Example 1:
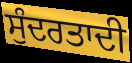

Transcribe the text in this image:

ਸੁੰਦਰਤਾਦੀ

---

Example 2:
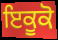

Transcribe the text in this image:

ਇਕੂਕੋ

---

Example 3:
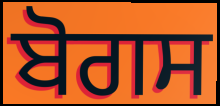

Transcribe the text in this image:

ਬੋਗਸ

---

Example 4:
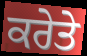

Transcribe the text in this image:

ਕਰੇਤੇ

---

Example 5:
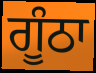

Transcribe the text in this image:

ਗੂੰਠਾ